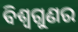
ବିଶ୍ୱଗୁଣର